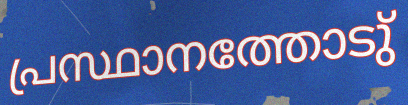
പ്രസ്ഥാനത്തോടു്